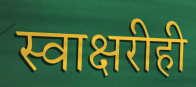
स्वाक्षरीही